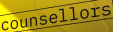
counsellors